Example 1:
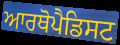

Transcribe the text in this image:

ਆਰਥੋਪੈਡਿਸਟ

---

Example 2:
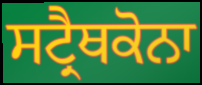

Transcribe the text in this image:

ਸਟ੍ਰੈਥਕੋਨਾ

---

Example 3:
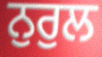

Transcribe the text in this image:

ਨੁਰੁਲ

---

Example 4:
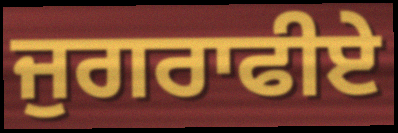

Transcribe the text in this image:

ਜੁਗਰਾਫੀਏ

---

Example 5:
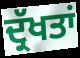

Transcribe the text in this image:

ਦ੍ਰੱਖਤਾਂ